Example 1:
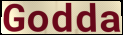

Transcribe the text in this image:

Godda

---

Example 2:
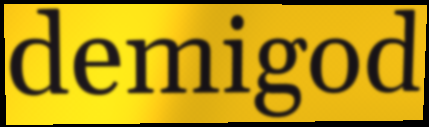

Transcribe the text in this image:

demigod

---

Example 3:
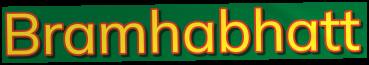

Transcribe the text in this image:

Bramhabhatt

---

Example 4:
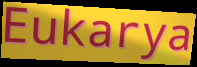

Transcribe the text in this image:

Eukarya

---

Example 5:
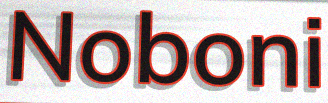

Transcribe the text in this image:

Noboni